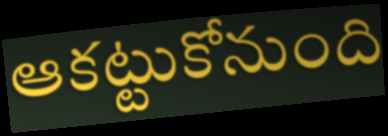
ఆకట్టుకోనుంది